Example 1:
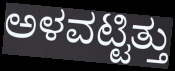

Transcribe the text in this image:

ಅಳವಟ್ಟಿತ್ತು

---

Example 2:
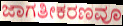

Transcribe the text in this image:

ಜಾಗತೀಕರಣವೂ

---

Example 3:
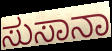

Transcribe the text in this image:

ಸುಸಾನಾ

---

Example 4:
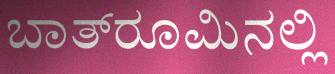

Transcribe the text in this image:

ಬಾತ್‌ರೂಮಿನಲ್ಲಿ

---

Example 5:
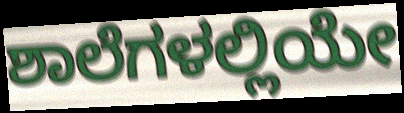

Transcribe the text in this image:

ಶಾಲೆಗಳಲ್ಲಿಯೇ